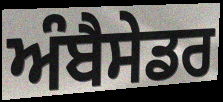
ਅੰਬੈਸੇਡਰ